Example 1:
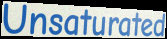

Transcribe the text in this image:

Unsaturated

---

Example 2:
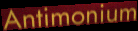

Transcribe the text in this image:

Antimonium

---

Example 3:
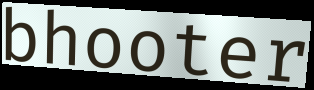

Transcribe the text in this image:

bhooter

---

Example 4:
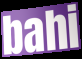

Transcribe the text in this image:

bahi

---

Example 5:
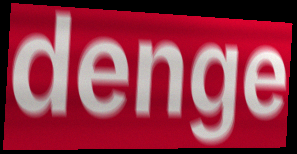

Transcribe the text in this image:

denge